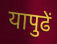
यापुढें